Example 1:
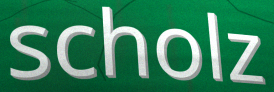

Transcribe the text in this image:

scholz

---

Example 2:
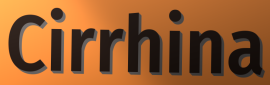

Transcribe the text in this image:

Cirrhina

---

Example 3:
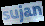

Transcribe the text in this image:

sujan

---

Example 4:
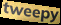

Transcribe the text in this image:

tweepy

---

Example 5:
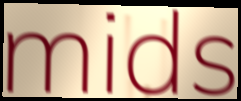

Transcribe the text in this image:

mids